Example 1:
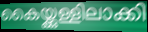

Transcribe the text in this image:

കൈയ്ക്കുള്ളിലാക്കി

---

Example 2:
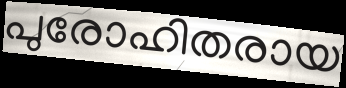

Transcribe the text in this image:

പുരോഹിതരായ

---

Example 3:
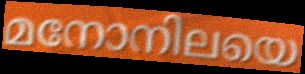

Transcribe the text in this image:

മനോനിലയെ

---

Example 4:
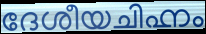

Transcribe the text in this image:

ദേശീയചിഹ്നം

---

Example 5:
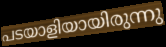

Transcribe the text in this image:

പടയാളിയായിരുന്നു